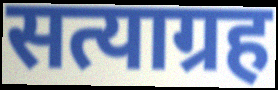
सत्याग्रह